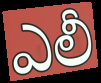
ఎలీ